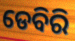
ଡେବିରି